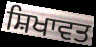
ਸ਼ਿਖਾਵਤ